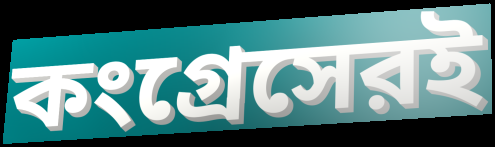
কংগ্রেসেরই